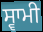
ਸ੍ਵਾਮੀ